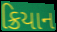
ક્રિયાન